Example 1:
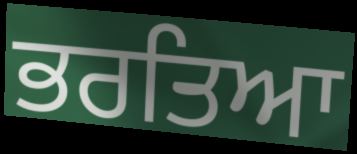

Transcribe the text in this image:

ਭਰਤਿਆ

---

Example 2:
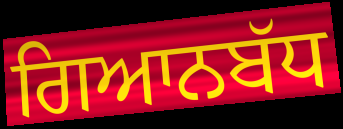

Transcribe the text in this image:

ਗਿਆਨਬੱਧ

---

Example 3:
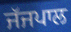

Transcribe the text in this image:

ਜੱਜਪਾਲ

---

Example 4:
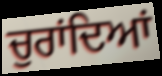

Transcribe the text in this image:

ਚੁਰਾਂਦਿਆਂ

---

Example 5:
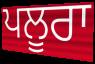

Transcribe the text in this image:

ਪਲੂਰਾ